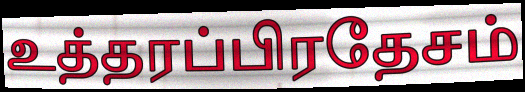
உத்தரப்பிரதேசம்